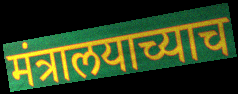
मंत्रालयाच्याच